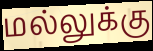
மல்லுக்கு